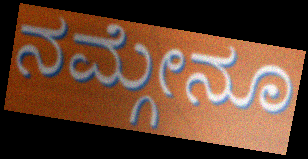
ನಮ್ಗೇನೂ